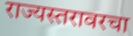
राज्यस्तरावरचा